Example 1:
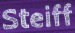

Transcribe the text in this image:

Steiff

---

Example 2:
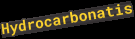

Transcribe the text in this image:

Hydrocarbonatis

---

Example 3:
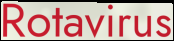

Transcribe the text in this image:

Rotavirus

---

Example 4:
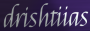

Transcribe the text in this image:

drishtiias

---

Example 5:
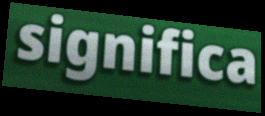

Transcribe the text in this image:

significa